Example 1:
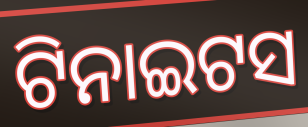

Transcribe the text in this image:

ଟିନାଇଟସ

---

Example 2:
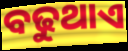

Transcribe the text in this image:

ବଢୁଥାଏ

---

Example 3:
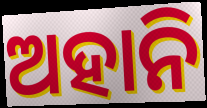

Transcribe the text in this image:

ଅହାନି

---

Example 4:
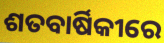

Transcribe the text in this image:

ଶତବାର୍ଷିକୀରେ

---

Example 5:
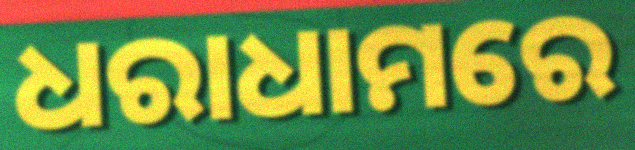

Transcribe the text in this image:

ଧରାଧାମରେ